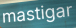
mastigar